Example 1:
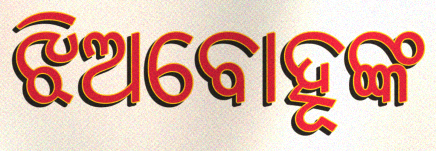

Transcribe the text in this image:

ଝିଅବୋହୂଙ୍କ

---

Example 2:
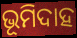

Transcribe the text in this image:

ଭୂମିଦାହ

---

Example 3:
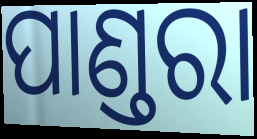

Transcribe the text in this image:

ପାଣ୍ଡରା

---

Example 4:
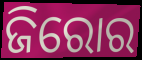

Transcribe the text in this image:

ଜିରୋର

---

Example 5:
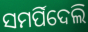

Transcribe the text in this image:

ସମର୍ପିଦେଲି